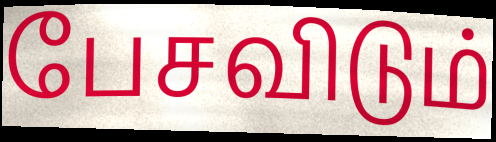
பேசவிடும்